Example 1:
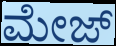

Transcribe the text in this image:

ಮೇಜ್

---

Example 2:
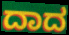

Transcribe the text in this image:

ದಾದ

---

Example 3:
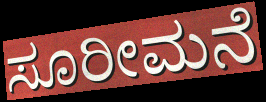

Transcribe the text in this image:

ಸೂರೀಮನೆ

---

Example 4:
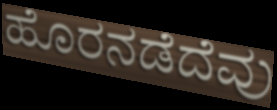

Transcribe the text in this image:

ಹೊರನಡೆದೆವು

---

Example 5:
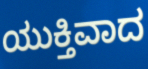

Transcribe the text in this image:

ಯುಕ್ತಿವಾದ